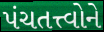
પંચતત્ત્વોને